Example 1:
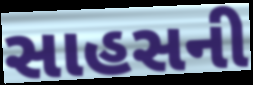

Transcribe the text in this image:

સાહસની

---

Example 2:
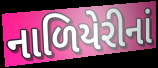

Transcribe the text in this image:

નાળિયેરીનાં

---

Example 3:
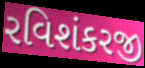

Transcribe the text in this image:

રવિશંકરજી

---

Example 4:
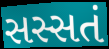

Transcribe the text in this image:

સસ્સતં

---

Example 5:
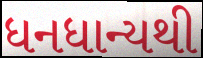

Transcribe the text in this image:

ધનધાન્યથી